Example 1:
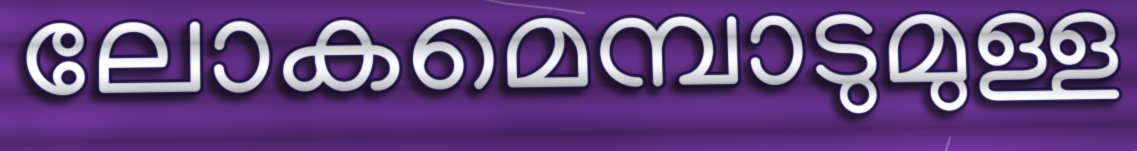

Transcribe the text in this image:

ലോകമെമ്പാടുമുള്ള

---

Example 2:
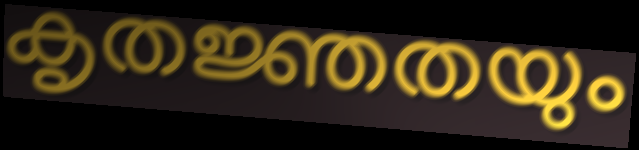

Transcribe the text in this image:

കൃതജ്ഞതയും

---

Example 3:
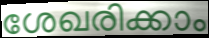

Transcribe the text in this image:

ശേഖരിക്കാം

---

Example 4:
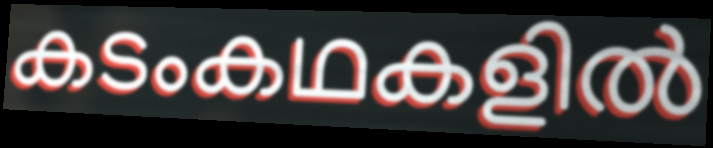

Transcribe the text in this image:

കടംകഥകളിൽ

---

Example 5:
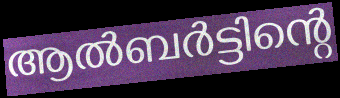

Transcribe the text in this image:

ആൽബർട്ടിന്റെ